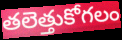
తలెత్తుకోగలం